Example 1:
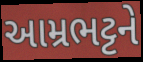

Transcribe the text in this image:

આમ્રભટ્ટને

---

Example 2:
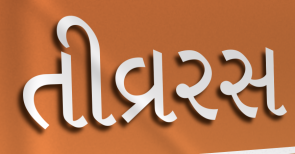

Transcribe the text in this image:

તીવ્રરસ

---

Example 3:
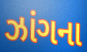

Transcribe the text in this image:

ઝાંગના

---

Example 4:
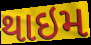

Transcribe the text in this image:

થાઇમ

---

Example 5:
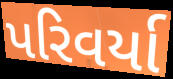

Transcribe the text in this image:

પરિવર્યા